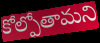
కోల్పోతామని